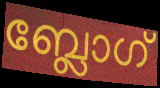
ബ്ലോഗ്